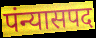
पंन्यासपद